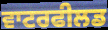
ਵਾਟਰਫੀਲਡ